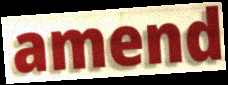
amend